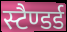
स्‍टैण्‍डर्ड